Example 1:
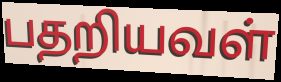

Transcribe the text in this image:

பதறியவள்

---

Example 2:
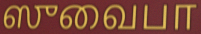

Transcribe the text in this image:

ஸுவைபா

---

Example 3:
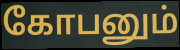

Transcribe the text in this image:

கோபனும்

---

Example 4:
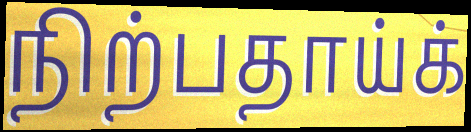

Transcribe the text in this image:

நிற்பதாய்க்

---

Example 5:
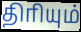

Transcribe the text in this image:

திரியும்